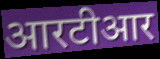
आरटीआर